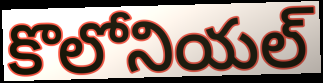
కొలోనియల్